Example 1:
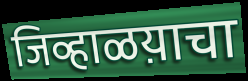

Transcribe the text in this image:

जिव्हाळय़ाचा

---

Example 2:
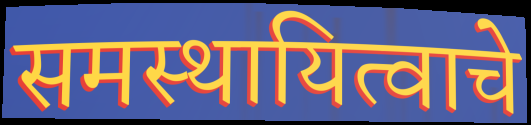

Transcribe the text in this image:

समस्थायित्वाचे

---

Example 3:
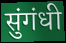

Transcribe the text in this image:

सुंगंधी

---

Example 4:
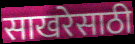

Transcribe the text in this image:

साखरेसाठी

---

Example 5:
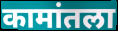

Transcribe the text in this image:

कामांतला